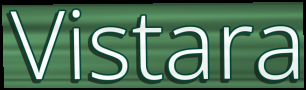
Vistara